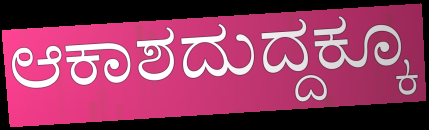
ಆಕಾಶದುದ್ದಕ್ಕೂ